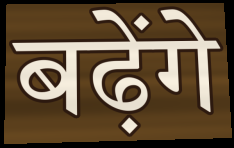
बढ़ेंगे